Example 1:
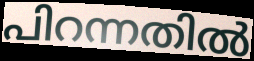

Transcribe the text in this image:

പിറന്നതിൽ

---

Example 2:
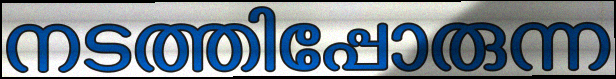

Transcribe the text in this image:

നടത്തിപ്പോരുന്ന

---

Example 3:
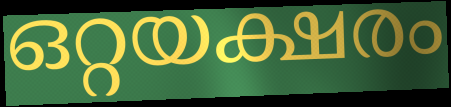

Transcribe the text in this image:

ഒറ്റയക്ഷരം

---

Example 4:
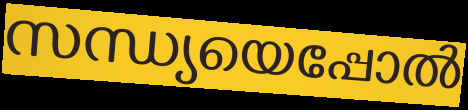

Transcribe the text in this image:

സന്ധ്യയെപ്പോൽ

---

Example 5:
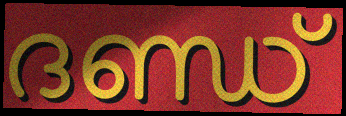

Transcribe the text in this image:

ദണ്ഡ്